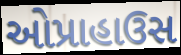
ઓપ્રાહાઉસ